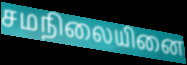
சமநிலையினை